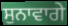
ਸੁਨਾਵਾਗੇ